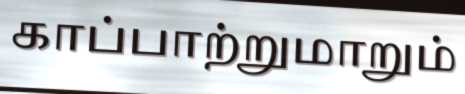
காப்பாற்றுமாறும்